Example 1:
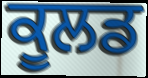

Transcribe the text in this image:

ਕੂਲਡ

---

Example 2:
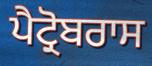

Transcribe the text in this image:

ਪੈਟ੍ਰੋਬਰਾਸ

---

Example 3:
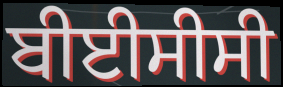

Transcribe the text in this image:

ਬੀਈਸੀਸੀ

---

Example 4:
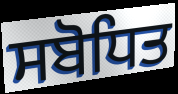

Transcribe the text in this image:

ਸਬੋਧਿਤ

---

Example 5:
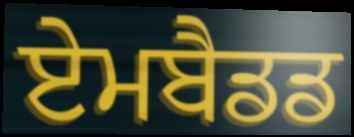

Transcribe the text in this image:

ਏਮਬੈਡਡ